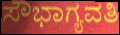
ಸೌಭಾಗ್ಯವತಿ